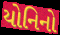
યોનિનો